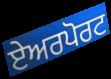
ਏਅਰਪੋਰਟ